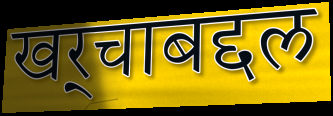
खर्चाबद्दल